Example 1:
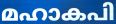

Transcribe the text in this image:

മഹാകപി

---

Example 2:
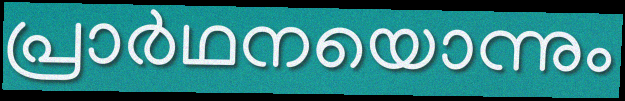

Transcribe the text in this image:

പ്രാർഥനയൊന്നും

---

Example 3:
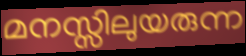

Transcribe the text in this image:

മനസ്സിലുയരുന്ന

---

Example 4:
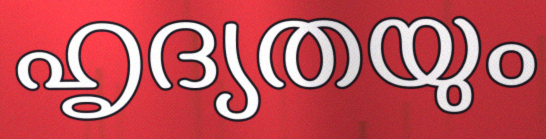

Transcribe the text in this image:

ഹൃദ്യതയും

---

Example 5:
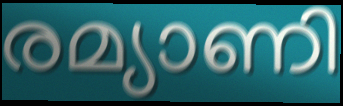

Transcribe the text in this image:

രമ്യാണി